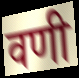
वणी